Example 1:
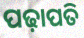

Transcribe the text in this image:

ପଢ଼ାପତି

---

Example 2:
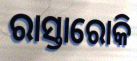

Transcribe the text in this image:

ରାସ୍ତାରୋକି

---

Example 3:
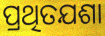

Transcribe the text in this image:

ପ୍ରଥିତଯଶା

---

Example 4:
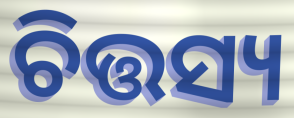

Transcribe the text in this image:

ଚିତ୍ତସ୍ୟ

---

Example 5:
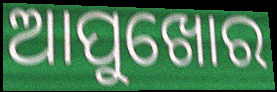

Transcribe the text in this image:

ଆପୁଖୋର